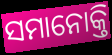
ସମାନୋକ୍ତି